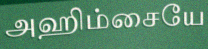
அஹிம்சையே